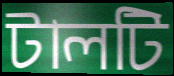
টালটি